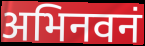
अभिनवनं